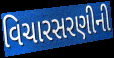
વિચારસરણીની